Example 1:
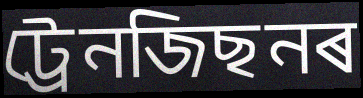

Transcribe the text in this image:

ট্ৰেনজিছনৰ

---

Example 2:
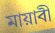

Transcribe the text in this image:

মায়াবী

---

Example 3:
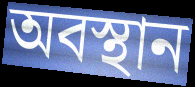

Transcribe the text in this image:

অবস্থান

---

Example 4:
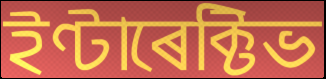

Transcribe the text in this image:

ইণ্টাৰেক্টিভ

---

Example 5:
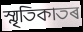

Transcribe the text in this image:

স্মৃতিকাতৰ